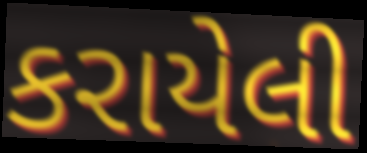
કરાયેલી